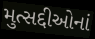
મુત્સદ્દીઓનાં